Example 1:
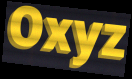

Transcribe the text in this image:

Oxyz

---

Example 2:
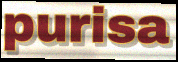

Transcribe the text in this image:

purisa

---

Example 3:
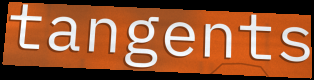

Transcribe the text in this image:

tangents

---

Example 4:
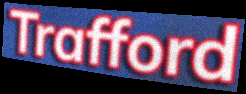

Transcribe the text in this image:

Trafford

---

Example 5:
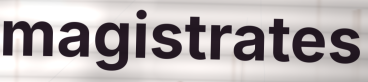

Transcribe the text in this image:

magistrates